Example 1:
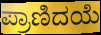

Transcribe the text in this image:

ಪ್ರಾಣಿದಯೆ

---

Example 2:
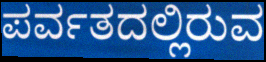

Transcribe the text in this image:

ಪರ್ವತದಲ್ಲಿರುವ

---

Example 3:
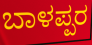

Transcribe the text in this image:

ಬಾಳಪ್ಪರ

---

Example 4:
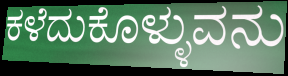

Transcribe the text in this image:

ಕಳೆದುಕೊಳ್ಳುವನು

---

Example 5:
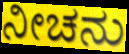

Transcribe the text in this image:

ನೀಚನು